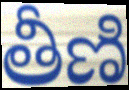
తీణి